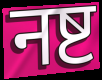
नष्ट